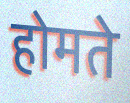
होमते